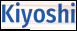
Kiyoshi